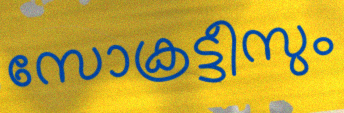
സോക്രട്ടീസും